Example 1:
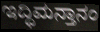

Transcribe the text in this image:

ಇದ್ಧಿಮನ್ತಾನಂ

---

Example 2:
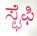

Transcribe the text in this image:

ಸ್ಟೆಫಿ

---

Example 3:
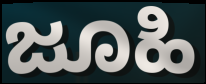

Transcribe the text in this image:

ಜೂಹಿ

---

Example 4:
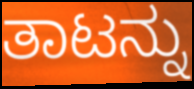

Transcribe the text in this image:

ತಾಟನ್ನು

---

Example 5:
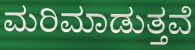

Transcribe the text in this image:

ಮರಿಮಾಡುತ್ತವೆ